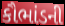
કૌભાંડની